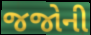
જજોની